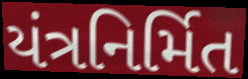
યંત્રનિર્મિત